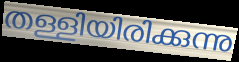
തള്ളിയിരിക്കുന്നു